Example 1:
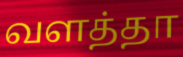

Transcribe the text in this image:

வளத்தா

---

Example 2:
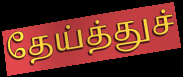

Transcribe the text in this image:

தேய்த்துச்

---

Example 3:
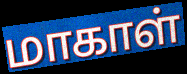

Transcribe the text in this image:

மாகாள்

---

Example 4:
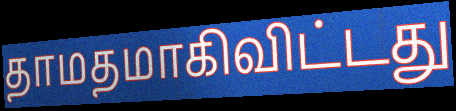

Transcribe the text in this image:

தாமதமாகிவிட்டது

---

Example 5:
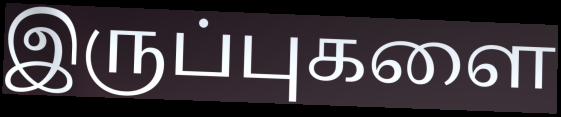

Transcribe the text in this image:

இருப்புகளை